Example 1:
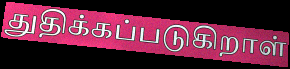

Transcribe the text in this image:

துதிக்கப்படுகிறாள்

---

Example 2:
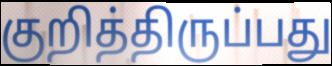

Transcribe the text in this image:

குறித்திருப்பது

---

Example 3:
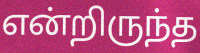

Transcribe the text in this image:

என்றிருந்த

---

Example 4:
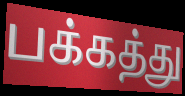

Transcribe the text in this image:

பக்கத்து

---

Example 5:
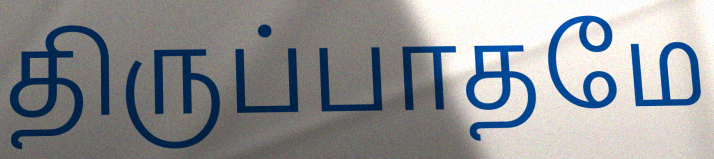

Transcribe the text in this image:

திருப்பாதமே